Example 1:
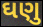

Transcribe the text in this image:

ઘણુ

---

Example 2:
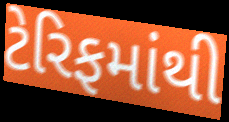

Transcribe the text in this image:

ટેરિફમાંથી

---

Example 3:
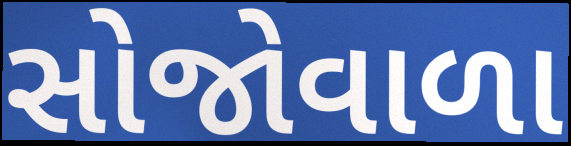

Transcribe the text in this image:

સોજોવાળા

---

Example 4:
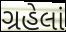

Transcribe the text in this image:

ગ્રહેલાં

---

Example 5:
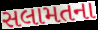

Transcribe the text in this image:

સલામતના